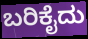
ಬರಿಕೈದು